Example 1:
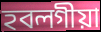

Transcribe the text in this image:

হবলগীয়া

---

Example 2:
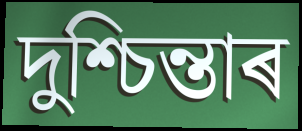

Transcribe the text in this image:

দুশ্চিন্তাৰ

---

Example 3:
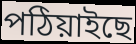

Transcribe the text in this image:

পঠিয়াইছে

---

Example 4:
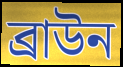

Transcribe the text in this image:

ব্ৰাউন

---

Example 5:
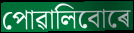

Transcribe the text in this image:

পোৱালিবোৰে